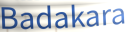
Badakara